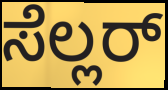
ಸೆಲ್ಲರ್